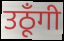
उठूँगी